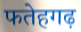
फतेहगढ़